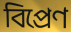
বিপ্রেণ